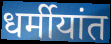
धर्मीयांत